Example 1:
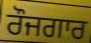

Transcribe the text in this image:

ਰੌਜਗਾਰ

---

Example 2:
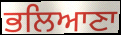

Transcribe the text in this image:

ਭਲਿਆਣਾ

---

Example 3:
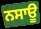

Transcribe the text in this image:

ਨਸਾਊ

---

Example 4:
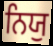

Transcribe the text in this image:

ਨਿਯੁ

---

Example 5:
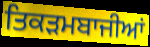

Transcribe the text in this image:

ਤਿਕੜਮਬਾਜੀਆਂ